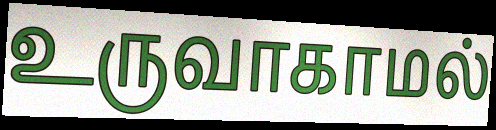
உருவாகாமல்